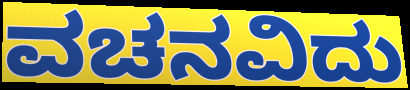
ವಚನವಿದು